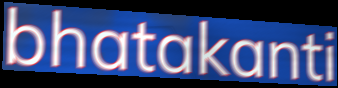
bhatakanti